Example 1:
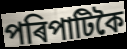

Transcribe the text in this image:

পৰিপাটিকৈ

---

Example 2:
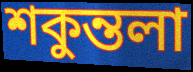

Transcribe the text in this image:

শকুন্তলা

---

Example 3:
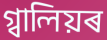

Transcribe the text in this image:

গ্বালিয়ৰ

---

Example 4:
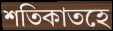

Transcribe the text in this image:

শতিকাতহে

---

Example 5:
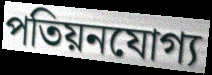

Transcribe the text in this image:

পতিয়নযোগ্য